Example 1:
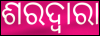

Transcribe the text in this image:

ଶରଦ୍ୱାରା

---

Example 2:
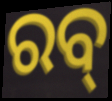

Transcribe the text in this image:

ରବ୍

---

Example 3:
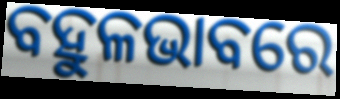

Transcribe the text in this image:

ବହୁଳଭାବରେ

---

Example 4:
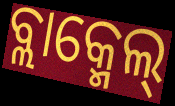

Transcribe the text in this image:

ବ୍ଲାକ୍ମେଲ୍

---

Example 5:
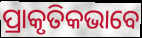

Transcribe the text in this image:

ପ୍ରାକୃତିକଭାବେ